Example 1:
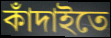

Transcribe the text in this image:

কাঁদাইতে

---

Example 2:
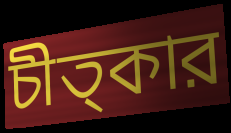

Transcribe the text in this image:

চীত্কার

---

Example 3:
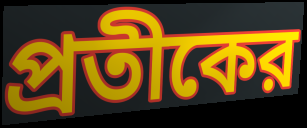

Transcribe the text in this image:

প্রতীকের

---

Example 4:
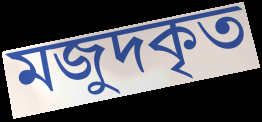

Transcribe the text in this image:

মজুদকৃত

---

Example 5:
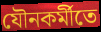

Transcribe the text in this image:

যৌনকর্মীতে